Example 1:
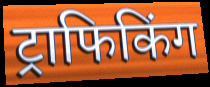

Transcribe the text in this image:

ट्राफिकिंग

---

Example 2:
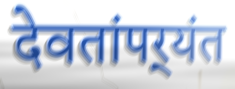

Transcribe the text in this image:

देवतांपर्यंत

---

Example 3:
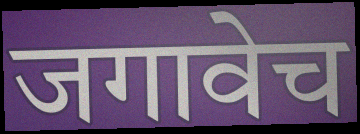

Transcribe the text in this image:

जगावेच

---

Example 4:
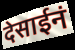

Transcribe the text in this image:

देसाईनं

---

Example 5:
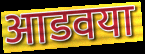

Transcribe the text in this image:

आडवया